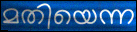
മതിയെന്ന